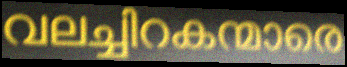
വലച്ചിറകന്മാരെ